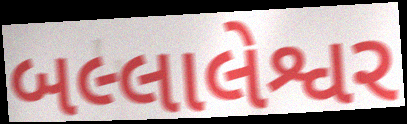
બલ્લાલેશ્વર